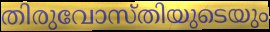
തിരുവോസ്തിയുടെയും